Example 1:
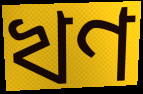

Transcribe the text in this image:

খণ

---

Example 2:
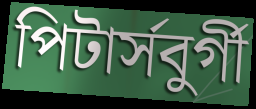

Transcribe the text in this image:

পিটার্সবুর্গী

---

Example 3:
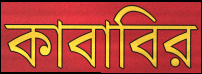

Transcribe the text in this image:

কাবাবির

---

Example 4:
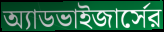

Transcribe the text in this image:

অ্যাডভাইজার্সের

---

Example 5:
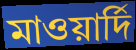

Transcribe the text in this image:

মাওয়ার্দি